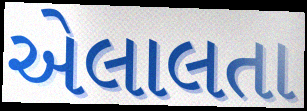
એલાલતા